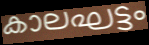
കാലഘട്ടം